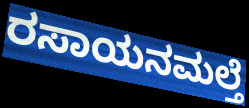
ರಸಾಯನಮಲ್ತೆ